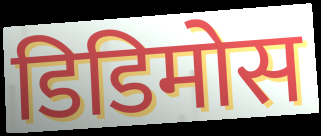
डिडिमोस